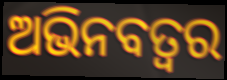
ଅଭିନବତ୍ୱର